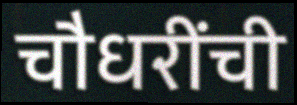
चौधरींची